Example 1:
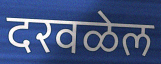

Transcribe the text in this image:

दरवळेल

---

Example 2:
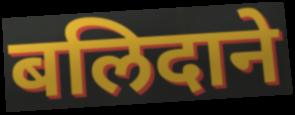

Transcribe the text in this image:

बलिदाने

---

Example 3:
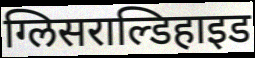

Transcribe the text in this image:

ग्लिसराल्डिहाइड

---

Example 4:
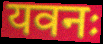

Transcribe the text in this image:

यवनः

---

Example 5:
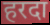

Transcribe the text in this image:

हरदा